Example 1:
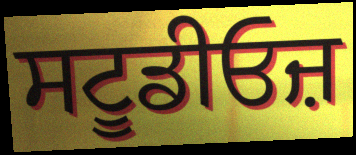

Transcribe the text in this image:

ਸਟੂਡੀਓਜ਼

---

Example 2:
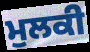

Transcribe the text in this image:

ਮੁਲਕੀ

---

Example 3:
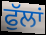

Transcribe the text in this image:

ਫੁੱਲਾਂ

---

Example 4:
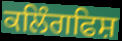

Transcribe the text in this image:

ਕਲਿੰਗਫਿਸ਼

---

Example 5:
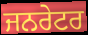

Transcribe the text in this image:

ਜਨਰੇਟਰ